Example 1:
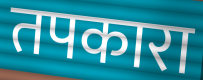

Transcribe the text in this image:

तपकारा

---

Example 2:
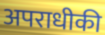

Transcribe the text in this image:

अपराधीकी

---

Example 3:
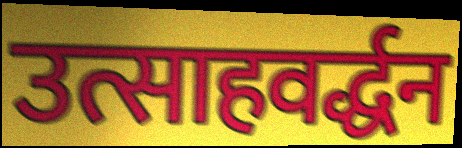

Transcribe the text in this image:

उत्साहवर्द्धन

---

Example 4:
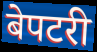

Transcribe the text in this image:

बेपटरी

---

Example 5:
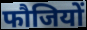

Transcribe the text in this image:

फौजियों